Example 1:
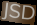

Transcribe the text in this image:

JSD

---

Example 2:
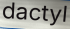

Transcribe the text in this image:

dactyl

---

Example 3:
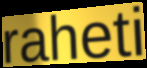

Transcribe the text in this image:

raheti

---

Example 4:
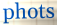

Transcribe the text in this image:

phots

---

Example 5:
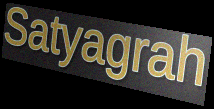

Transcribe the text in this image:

Satyagrah